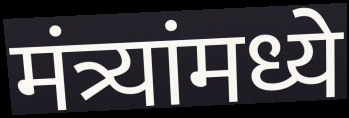
मंत्र्यांमध्ये